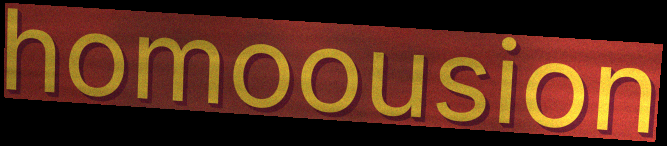
homoousion